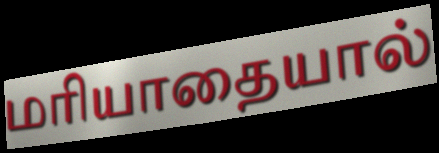
மரியாதையால்